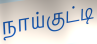
நாய்குட்டி